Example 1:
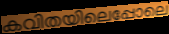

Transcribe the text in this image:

കവിതയിലെപ്പോലെ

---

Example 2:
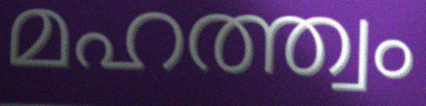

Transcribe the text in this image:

മഹത്ത്വം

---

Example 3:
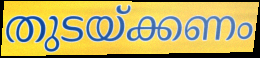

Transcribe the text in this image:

തുടയ്ക്കണം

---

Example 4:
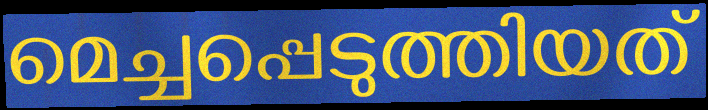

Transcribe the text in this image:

മെച്ചപ്പെടുത്തിയത്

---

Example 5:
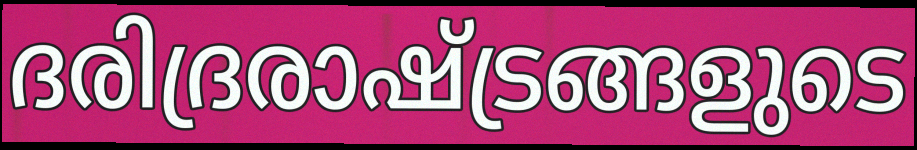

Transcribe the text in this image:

ദരിദ്രരാഷ്ട്രങ്ങളുടെ